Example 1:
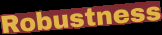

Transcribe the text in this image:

Robustness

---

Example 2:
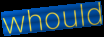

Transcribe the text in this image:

whould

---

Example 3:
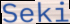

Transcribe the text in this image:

Seki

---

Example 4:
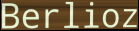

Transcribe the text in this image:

Berlioz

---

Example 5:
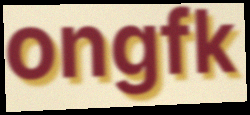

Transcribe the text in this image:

ongfk